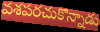
వశపరచుకొన్నాడు